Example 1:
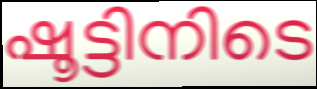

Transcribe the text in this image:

ഷൂട്ടിനിടെ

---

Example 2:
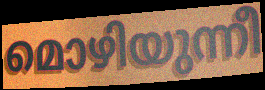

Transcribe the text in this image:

മൊഴിയുന്നീ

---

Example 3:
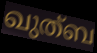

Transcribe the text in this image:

ഖുത്ബ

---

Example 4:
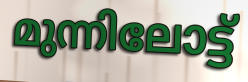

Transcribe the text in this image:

മുന്നിലോട്ട്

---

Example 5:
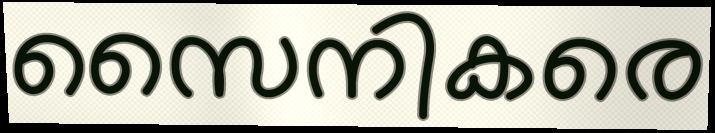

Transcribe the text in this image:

സൈനികരെ